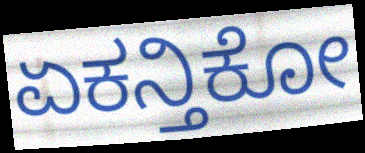
ಏಕನ್ತಿಕೋ